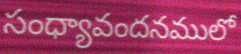
సంధ్యావందనములో